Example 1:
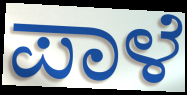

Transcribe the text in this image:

ಪಾಳೆ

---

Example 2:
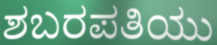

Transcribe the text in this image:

ಶಬರಪತಿಯು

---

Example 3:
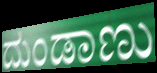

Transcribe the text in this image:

ದುಂಡಾಣು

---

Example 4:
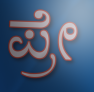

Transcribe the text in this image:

ಪ್ರೇ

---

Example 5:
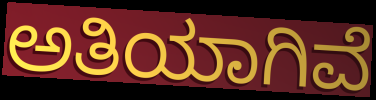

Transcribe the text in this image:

ಅತಿಯಾಗಿವೆ